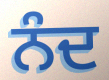
ਨੰਦ